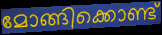
മോങ്ങിക്കൊണ്ട്